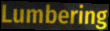
Lumbering